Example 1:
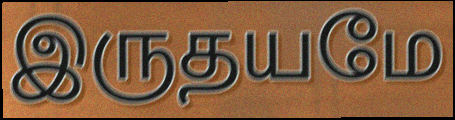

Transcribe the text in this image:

இருதயமே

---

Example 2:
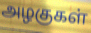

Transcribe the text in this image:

அழகுகள்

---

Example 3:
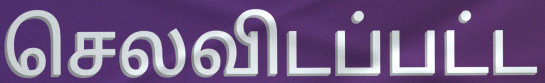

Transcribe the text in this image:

செலவிடப்பட்ட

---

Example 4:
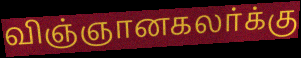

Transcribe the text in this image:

விஞ்ஞானகலர்க்கு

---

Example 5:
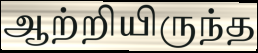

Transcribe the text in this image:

ஆற்றியிருந்த